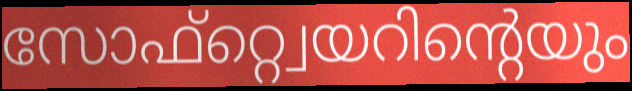
സോഫ്റ്റ്വെയറിന്റെയും